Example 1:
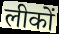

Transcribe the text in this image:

लीकों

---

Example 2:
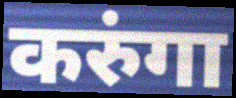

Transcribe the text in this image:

करुंगा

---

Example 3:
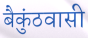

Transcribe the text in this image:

बैकुंठवासी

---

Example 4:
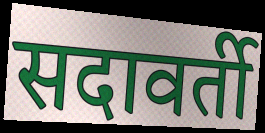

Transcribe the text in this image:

सदावर्ती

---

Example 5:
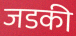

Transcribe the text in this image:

जडकी